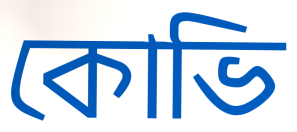
কোভি